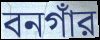
বনগাঁর